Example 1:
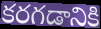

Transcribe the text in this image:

కరగడానికి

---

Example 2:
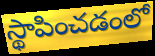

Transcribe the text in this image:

స్థాపించడంలో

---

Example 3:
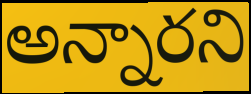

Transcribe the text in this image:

అన్నారని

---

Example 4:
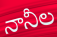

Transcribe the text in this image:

నానీల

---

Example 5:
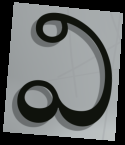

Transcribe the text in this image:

వి